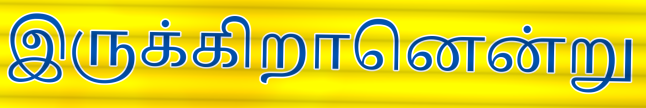
இருக்கிறானென்று